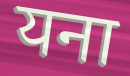
यना